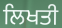
ਲਿਖਤੀ